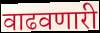
वाढवणारी